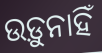
ଉଡ଼ୁନାହିଁ